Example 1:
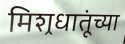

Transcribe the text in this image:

मिश्रधातूंच्या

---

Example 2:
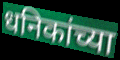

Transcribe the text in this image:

धनिकांच्या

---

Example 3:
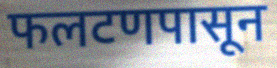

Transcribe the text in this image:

फलटणपासून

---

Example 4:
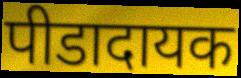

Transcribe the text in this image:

पीडादायक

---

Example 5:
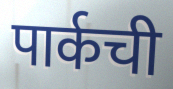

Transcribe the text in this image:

पार्कची